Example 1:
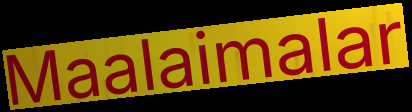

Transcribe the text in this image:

Maalaimalar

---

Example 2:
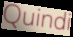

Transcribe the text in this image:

Quindi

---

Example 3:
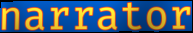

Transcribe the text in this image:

narrator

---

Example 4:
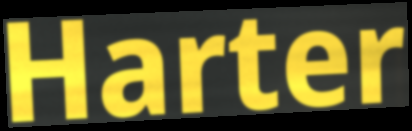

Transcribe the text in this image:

Harter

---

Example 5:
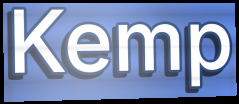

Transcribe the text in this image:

Kemp